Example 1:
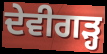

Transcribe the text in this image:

ਦੇਵੀਗੜ੍ਹ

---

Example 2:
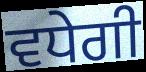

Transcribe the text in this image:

ਵਧੇਗੀ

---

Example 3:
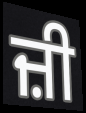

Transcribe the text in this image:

ਜ਼ੀ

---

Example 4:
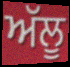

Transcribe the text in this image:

ਅੱਲੂ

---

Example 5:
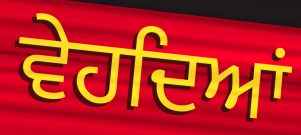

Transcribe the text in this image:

ਵੇਹਦਿਆਂ